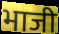
भाजी